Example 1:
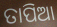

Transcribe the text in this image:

ତାପିଆ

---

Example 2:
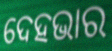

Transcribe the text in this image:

ଦେହଭାର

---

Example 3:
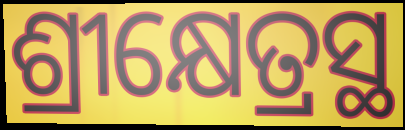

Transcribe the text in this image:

ଶ୍ରୀକ୍ଷେତ୍ରସ୍ଥ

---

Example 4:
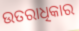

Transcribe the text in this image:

ଉତରାଧିକାର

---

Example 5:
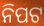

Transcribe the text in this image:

ନିପଟ